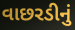
વાછરડીનું